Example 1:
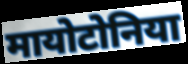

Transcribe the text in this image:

मायोटोनिया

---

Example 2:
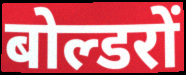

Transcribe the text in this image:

बोल्डरों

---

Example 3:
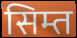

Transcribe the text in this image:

सिम्त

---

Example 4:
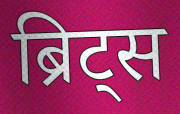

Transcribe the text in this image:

ब्रिट्स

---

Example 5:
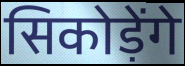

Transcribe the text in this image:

सिकोड़ेंगे